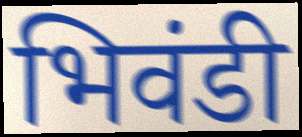
भिवंडी